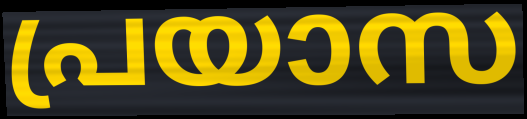
പ്രയാസ